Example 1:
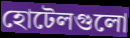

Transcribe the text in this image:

হোটেলগুলো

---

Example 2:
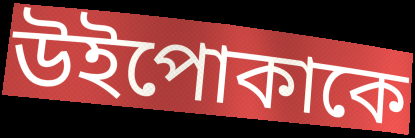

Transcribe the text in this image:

উইপোকাকে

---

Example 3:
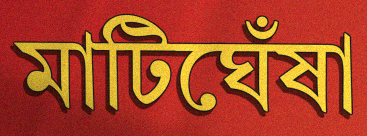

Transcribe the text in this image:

মাটিঘেঁষা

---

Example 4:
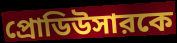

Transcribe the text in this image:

প্রোডিউসারকে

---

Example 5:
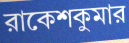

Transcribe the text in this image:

রাকেশকুমার